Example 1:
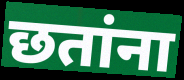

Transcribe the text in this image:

छतांना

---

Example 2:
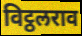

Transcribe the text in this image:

विट्ठलराव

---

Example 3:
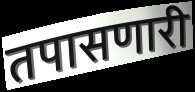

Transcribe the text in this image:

तपासणारी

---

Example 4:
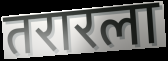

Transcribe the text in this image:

तरारला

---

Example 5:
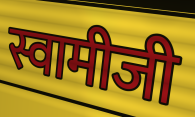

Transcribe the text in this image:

स्वामीजी